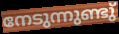
നേടുന്നുണ്ടു്